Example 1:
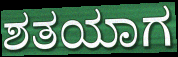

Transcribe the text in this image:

ಶತಯಾಗ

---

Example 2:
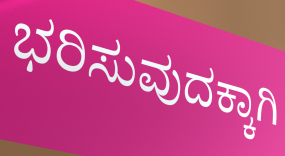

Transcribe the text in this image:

ಭರಿಸುವುದಕ್ಕಾಗಿ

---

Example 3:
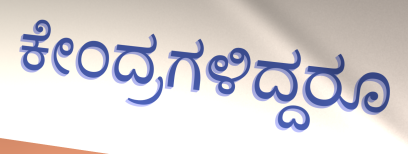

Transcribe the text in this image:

ಕೇಂದ್ರಗಳಿದ್ದರೂ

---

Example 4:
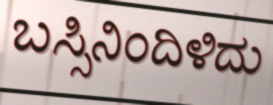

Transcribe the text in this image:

ಬಸ್ಸಿನಿಂದಿಳಿದು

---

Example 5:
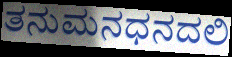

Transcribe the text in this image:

ತನುಮನಧನದಲಿ